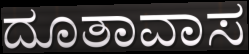
ದೂತಾವಾಸ